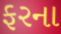
ફરના